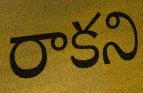
రాకని